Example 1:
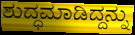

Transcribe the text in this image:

ಶುದ್ಧಮಾಡಿದ್ದನ್ನು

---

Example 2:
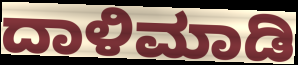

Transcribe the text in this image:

ದಾಳಿಮಾಡಿ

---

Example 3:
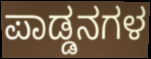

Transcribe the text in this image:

ಪಾಡ್ಡನಗಳ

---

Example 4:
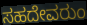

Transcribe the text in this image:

ಸಹದೇವರುಂ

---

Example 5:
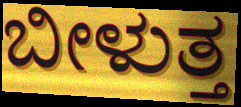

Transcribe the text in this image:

ಬೀಳುತ್ತ